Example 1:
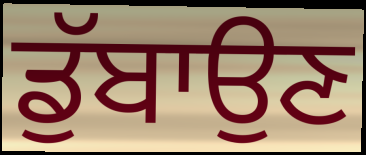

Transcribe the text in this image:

ਡੁੱਬਾਉਣ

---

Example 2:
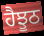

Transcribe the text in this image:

ਹੈਝੂਠ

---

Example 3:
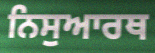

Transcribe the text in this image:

ਨਿਸੁਆਰਥ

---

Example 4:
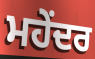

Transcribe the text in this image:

ਮਹੇਂਦਰ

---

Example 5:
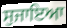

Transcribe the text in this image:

ਸੁਜਾਇਆ